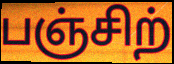
பஞ்சிற்